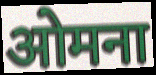
ओमना